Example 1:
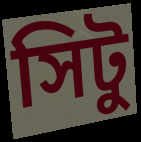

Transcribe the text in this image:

সিটু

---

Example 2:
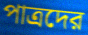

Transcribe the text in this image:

পাত্রদের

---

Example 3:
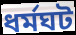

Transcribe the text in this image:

ধর্মঘট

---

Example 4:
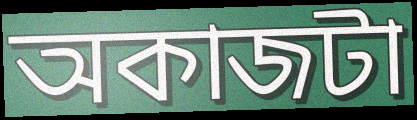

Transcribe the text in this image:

অকাজটা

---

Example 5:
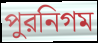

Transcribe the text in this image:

পুরনিগম